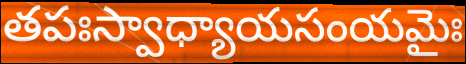
తపఃస్వాధ్యాయసంయమైః